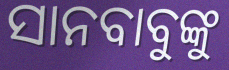
ସାନବାବୁଙ୍କୁ